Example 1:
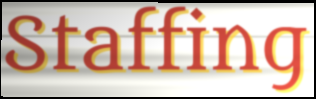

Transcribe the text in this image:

Staffing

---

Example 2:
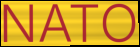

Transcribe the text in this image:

NATO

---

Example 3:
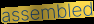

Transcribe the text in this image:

assembled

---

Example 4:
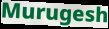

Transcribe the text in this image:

Murugesh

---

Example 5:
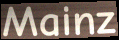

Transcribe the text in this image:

Mainz